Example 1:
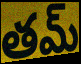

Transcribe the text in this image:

తమ్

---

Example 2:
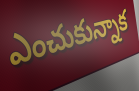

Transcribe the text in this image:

ఎంచుకున్నాక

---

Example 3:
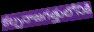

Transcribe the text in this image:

కల్పనాజగత్తులోనికి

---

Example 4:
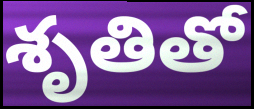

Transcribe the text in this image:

శృతితో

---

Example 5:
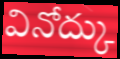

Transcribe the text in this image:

వినోద్కు